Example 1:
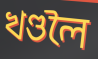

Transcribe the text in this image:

খণ্ডলৈ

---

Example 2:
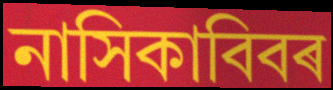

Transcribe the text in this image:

নাসিকাবিবৰ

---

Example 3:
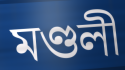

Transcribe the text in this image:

মণ্ডলী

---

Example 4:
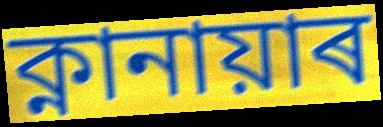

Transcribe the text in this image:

ক্নানায়াৰ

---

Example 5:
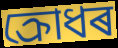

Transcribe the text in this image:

ক্ৰোধৰ